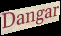
Dangar